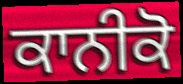
ਕਾਨੀਕੋ